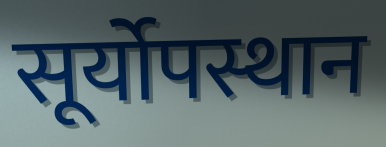
सूर्योपस्थान